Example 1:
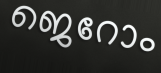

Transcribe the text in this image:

ജെറോം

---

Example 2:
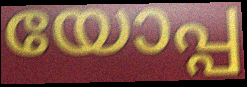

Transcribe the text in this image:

യോപ്പ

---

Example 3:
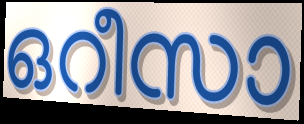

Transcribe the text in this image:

ഒറീസാ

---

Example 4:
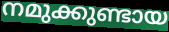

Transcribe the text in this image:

നമുക്കുണ്ടായ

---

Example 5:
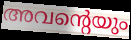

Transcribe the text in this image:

അവന്റെയും